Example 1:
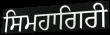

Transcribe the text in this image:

ਸਿਮਹਾਗਿਰੀ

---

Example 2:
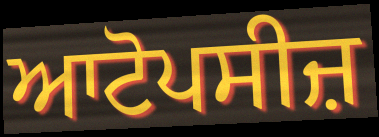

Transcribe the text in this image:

ਆਟੋਪਸੀਜ਼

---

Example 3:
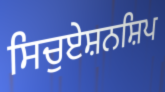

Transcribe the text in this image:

ਸਿਚੁਏਸ਼ਨਸ਼ਿਪ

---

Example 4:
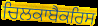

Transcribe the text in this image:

ਚਿਲਕਾਬੈਕਰਿਸ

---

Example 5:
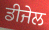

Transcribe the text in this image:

ਡੀਜੇਲ